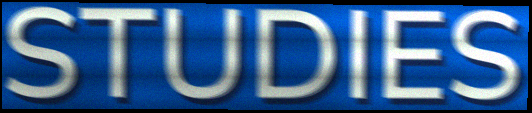
STUDIES